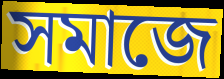
সমাজে